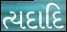
ત્યદાદિ